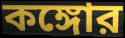
কঙ্গোর